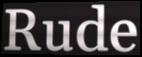
Rude